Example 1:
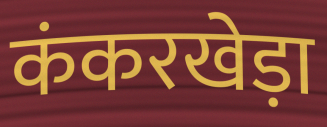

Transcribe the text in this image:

कंकरखेड़ा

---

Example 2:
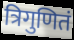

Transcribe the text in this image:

त्रिगुणितं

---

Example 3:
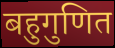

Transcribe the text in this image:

बहुगुणित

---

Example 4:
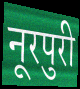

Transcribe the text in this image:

नूरपुरी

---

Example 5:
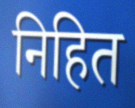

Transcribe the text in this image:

निहित